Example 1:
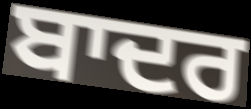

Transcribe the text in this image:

ਬਾਦਰ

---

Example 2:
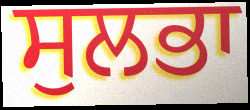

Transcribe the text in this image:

ਸੁਲਭਾ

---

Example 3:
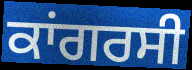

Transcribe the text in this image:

ਕਾਂਗਰਸੀ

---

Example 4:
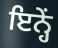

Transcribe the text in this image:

ਇਨ੍ਹੇਂ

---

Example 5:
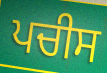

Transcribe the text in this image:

ਪਚੀਸ